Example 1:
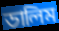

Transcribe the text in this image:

ডালিম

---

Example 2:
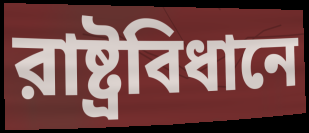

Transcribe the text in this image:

রাষ্ট্রবিধানে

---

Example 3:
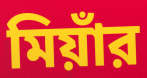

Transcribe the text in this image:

মিয়াঁর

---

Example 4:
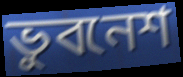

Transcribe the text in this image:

ভুবনেশ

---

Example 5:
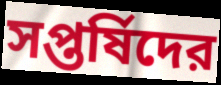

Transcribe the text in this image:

সপ্তর্ষিদের